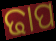
ଢାପ